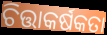
ଚିତ୍ତାକର୍ଷକତା